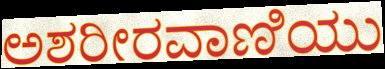
ಅಶರೀರವಾಣಿಯು